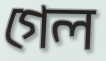
গেল